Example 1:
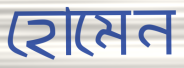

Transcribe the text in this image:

হোমেন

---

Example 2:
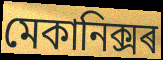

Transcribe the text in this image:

মেকানিক্সৰ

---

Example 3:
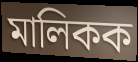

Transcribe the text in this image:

মালিকক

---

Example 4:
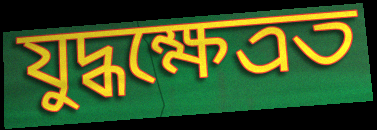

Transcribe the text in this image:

যুদ্ধক্ষেত্ৰত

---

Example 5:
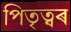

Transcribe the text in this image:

পিতৃত্বৰ